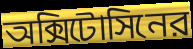
অক্সিটোসিনের